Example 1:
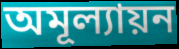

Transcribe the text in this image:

অমূল্যায়ন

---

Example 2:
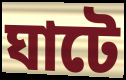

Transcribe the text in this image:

ঘাটে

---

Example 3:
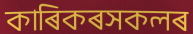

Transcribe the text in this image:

কাৰিকৰসকলৰ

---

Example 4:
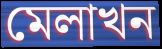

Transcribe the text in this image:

মেলাখন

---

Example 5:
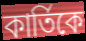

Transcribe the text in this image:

কাৰ্তিকে